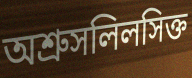
অশ্রুসলিলসিক্ত